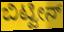
ಬಿಟ್ವೀನ್